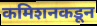
कमिशनकडून